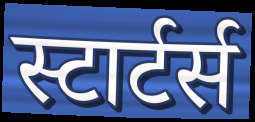
स्टार्टर्स